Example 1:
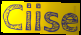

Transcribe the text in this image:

Ciise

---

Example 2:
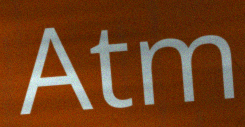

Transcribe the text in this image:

Atm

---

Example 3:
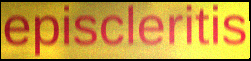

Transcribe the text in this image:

episcleritis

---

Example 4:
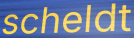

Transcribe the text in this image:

scheldt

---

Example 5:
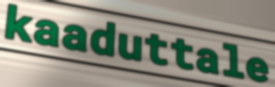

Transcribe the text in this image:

kaaduttale